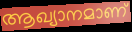
ആഖ്യാനമാണ്